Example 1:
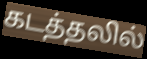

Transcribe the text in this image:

கடத்தலில்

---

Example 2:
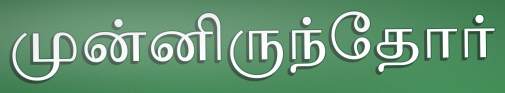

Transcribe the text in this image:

முன்னிருந்தோர்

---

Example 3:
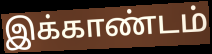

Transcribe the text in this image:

இக்காண்டம்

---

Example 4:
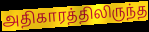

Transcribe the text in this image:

அதிகாரத்திலிருந்த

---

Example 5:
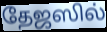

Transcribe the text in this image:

தேஜஸில்